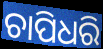
ଚାପିଧରି